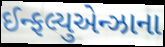
ઈન્ફલ્યુએન્ઝાના